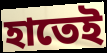
হাতেই